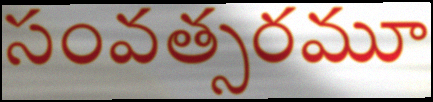
సంవత్సరమూ